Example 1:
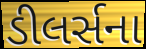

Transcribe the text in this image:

ડીલર્સના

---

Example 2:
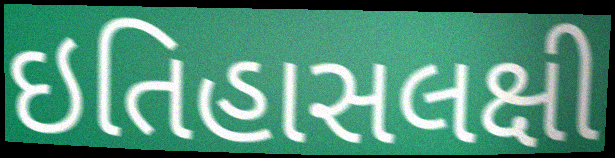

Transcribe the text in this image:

ઇતિહાસલક્ષી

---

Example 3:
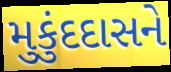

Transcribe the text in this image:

મુકુંદદાસને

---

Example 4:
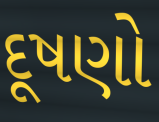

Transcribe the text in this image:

દૂષણો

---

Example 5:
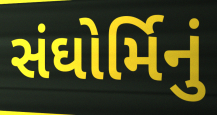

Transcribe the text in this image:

સંઘોર્મિનું